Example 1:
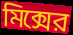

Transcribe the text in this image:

মিক্সের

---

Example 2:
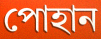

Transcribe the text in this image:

পোহান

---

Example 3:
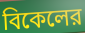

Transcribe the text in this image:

বিকেলের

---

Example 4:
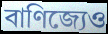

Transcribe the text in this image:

বাণিজ্যেও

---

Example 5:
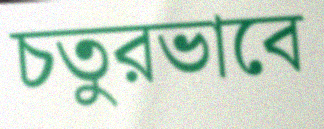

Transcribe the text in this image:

চতুরভাবে